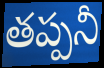
తప్పనీ